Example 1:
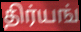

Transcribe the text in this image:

திர்யங்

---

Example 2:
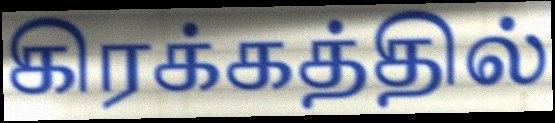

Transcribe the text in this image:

கிரக்கத்தில்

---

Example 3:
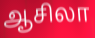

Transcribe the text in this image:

ஆசிலா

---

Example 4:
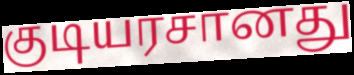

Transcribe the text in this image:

குடியரசானது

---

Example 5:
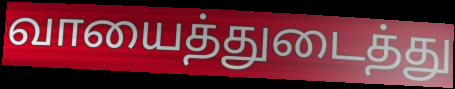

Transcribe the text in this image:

வாயைத்துடைத்து